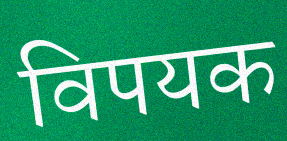
विपयक